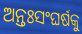
ଅନ୍ତଃସଂଘର୍ଷକୁ